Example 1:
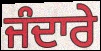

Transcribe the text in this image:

ਜੰਦਾਰੇ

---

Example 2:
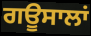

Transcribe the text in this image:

ਗਊਸਾਲਾਂ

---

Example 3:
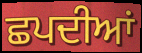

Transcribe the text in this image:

ਛਪਦੀਆਂ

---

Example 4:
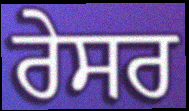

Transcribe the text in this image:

ਰੇਸਰ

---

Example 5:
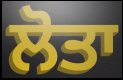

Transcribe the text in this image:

ਲੋਤਾ